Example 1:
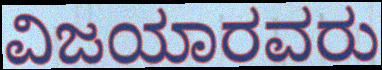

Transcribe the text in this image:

ವಿಜಯಾರವರು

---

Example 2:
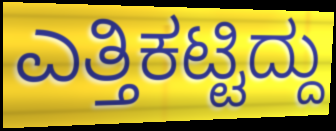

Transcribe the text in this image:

ಎತ್ತಿಕಟ್ಟಿದ್ದು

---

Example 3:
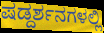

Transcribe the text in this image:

ಷಡ್ದರ್ಶನಗಳಲ್ಲಿ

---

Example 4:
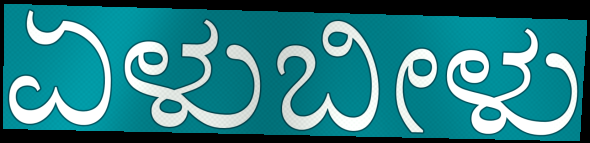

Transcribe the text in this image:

ಏಳುಬೀಳು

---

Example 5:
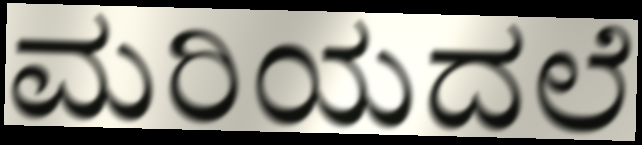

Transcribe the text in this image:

ಮರಿಯದಲೆ